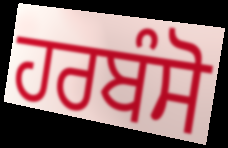
ਹਰਬੰਸੋ